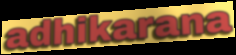
adhikarana